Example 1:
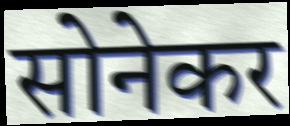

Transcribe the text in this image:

सोनेकर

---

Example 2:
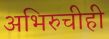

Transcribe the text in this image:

अभिरुचीही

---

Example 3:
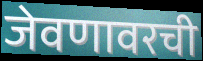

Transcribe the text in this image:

जेवणावरची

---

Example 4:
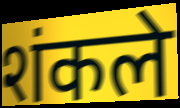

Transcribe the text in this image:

शंकले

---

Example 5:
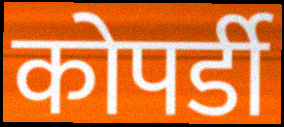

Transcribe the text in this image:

कोपर्डी